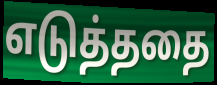
எடுத்ததை